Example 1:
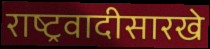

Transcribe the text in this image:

राष्ट्रवादीसारखे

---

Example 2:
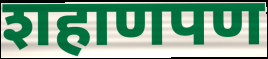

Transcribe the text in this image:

शहाणपण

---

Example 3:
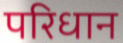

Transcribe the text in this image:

परिधान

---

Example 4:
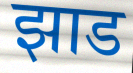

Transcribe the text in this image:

झाड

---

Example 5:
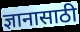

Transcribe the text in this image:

ज्ञानासाठी